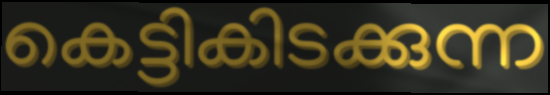
കെട്ടികിടക്കുന്ന